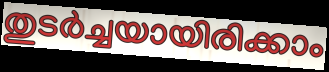
തുടർച്ചയായിരിക്കാം